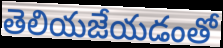
తెలియజేయడంతో